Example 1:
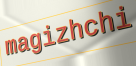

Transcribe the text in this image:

magizhchi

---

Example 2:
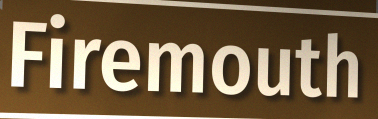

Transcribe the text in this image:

Firemouth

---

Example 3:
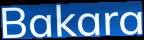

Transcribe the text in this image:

Bakara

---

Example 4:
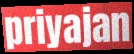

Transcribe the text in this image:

priyajan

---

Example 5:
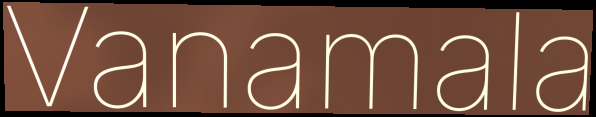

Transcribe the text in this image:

Vanamala